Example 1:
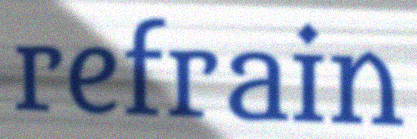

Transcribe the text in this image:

refrain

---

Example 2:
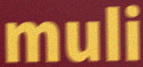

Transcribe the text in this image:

muli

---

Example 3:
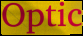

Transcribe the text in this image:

Optic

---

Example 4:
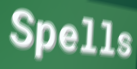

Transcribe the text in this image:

Spells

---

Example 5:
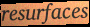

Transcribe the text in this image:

resurfaces